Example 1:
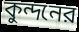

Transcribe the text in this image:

কুন্দনের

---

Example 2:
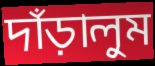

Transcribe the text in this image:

দাঁড়ালুম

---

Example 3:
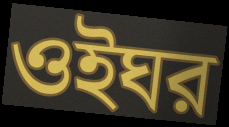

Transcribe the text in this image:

ওইঘর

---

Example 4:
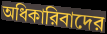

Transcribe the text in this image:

অধিকারিবাদের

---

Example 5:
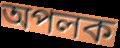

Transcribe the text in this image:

অপলক